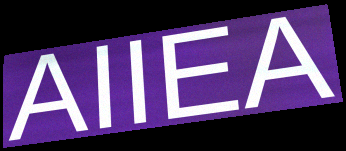
AIIEA